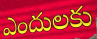
ఎందులకు